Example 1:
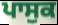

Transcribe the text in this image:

ਪਾਸੁਕ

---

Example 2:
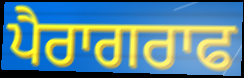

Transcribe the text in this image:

ਪੈਰਾਗਰਾਫ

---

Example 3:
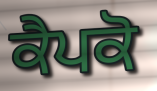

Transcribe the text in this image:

ਕੈਪਕੋ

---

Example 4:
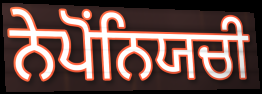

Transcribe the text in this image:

ਨੇਪੋਂਨਿਯਚੀ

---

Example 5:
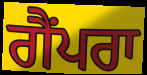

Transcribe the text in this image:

ਗੈਂਪਰਾ